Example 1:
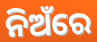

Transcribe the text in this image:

ନିଅଁରେ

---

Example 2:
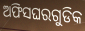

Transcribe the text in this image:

ଅଫିସଘରଗୁଡିକ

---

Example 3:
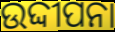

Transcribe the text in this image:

ଉଦ୍ଦୀପନା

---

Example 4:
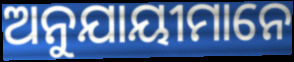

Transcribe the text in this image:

ଅନୁଯାୟୀମାନେ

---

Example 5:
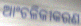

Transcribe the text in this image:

ଆଂଚଳିକୀକରଣ